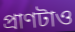
প্রাণটাও